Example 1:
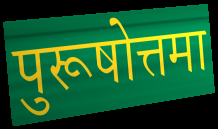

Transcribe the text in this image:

पुरूषोत्तमा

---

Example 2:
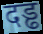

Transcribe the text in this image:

दड्ढ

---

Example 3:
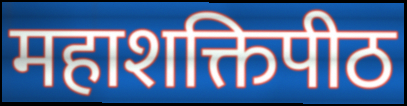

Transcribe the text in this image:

महाशक्तिपीठ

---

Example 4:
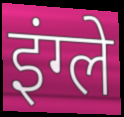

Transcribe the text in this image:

इंग्ले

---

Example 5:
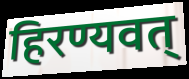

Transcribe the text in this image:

हिरण्यवत्